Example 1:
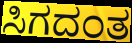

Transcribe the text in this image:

ಸಿಗದಂತ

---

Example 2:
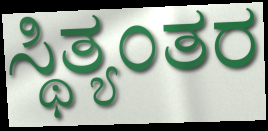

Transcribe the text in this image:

ಸ್ಥಿತ್ಯಂತರ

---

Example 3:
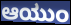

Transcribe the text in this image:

ಆಯುಂ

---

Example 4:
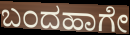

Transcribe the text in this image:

ಬಂದಹಾಗೇ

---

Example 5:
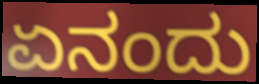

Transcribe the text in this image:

ಏನಂದು